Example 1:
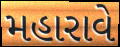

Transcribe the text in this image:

મહારાવે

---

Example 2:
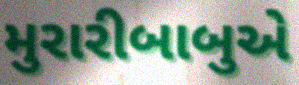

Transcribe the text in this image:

મુરારીબાબુએ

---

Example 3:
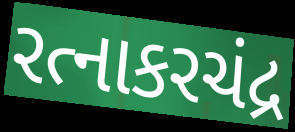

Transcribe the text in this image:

રત્નાકરચંદ્ર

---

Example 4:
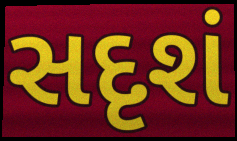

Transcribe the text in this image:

સદૃશં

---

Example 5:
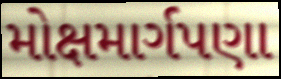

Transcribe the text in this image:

મોક્ષમાર્ગપણા